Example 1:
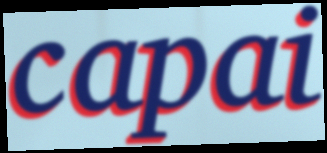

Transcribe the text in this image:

capai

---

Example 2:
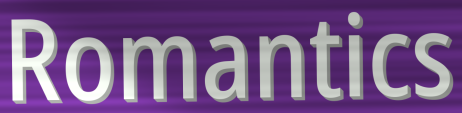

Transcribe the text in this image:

Romantics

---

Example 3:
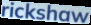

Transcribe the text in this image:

rickshaw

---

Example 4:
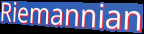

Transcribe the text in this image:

Riemannian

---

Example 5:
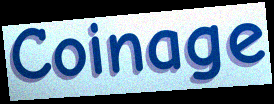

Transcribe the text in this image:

Coinage